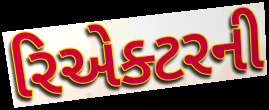
રિએક્ટરની